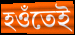
হওঁতেই